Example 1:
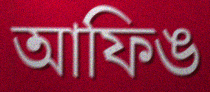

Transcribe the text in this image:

আফিঙ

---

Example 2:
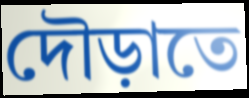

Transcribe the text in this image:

দৌড়াতে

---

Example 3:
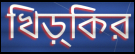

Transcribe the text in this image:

খিড়্‌কির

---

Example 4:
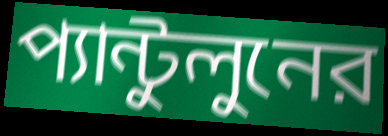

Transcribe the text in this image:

প্যান্টুলুনের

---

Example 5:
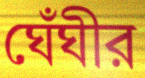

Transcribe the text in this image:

ঘেঁঘীর